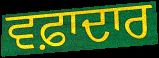
ਵਫ਼ਾਦਾਰ